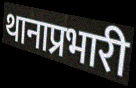
थानाप्रभारी